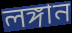
লঙ্গান